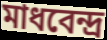
মাধবেন্দ্র